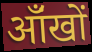
आंँखों